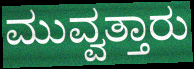
ಮುವ್ವತ್ತಾರು